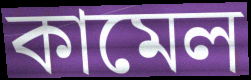
কামেল